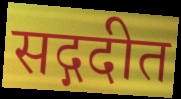
सद्गदीत